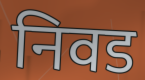
निवड